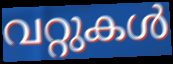
വറ്റുകൾ